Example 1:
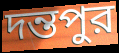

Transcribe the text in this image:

দন্তপুর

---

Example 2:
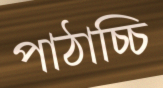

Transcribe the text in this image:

পাঠাচ্চি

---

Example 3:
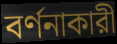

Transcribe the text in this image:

বর্ণনাকারী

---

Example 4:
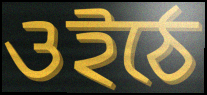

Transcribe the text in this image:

ওইঠে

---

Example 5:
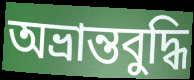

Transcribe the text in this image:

অভ্রান্তবুদ্ধি